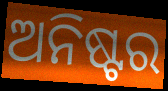
ଅନିଷ୍ଟର